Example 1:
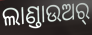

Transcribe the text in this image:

ଲାଣ୍ଡାଉଅର୍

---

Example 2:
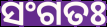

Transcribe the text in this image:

ସଂଗତଃ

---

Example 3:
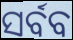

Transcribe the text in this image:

ସର୍ବବ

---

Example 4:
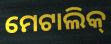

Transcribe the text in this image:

ମେଟାଲିକ୍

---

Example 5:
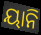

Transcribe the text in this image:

ୟାନି